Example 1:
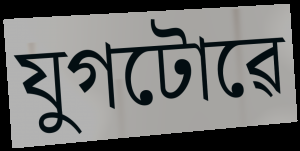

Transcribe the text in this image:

যুগটোৱে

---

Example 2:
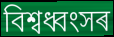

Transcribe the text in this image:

বিশ্বধ্বংসৰ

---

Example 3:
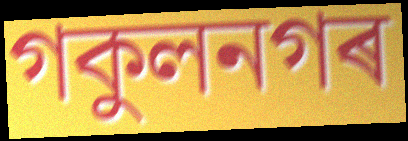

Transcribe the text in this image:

গকুলনগৰ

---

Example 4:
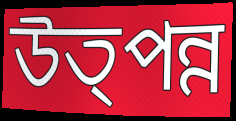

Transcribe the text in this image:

উত্পন্ন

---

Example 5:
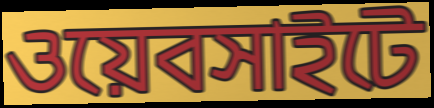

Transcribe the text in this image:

ওয়েবসাইটে